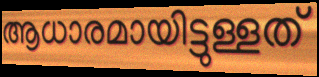
ആധാരമായിട്ടുള്ളത്